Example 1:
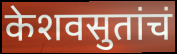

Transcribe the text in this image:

केशवसुतांचं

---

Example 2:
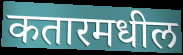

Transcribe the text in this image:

कतारमधील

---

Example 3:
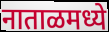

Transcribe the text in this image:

नाताळमध्ये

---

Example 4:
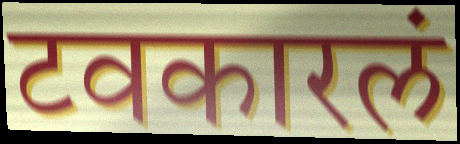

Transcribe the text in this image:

टवकारलं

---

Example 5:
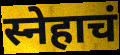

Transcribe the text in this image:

स्नेहाचं